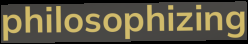
philosophizing